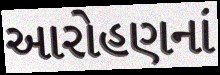
આરોહણનાં